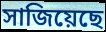
সাজিয়েছে